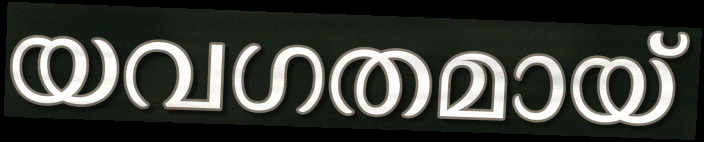
യവഗതമായ്